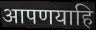
आपणयाहि